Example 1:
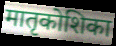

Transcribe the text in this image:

मातृकोशिका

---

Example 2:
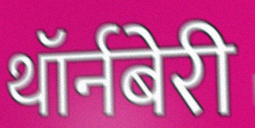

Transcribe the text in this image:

थॉर्नबेरी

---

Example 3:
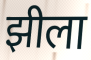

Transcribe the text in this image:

झीला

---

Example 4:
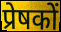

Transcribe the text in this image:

प्रेषकों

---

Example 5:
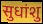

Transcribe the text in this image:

सुधांशु